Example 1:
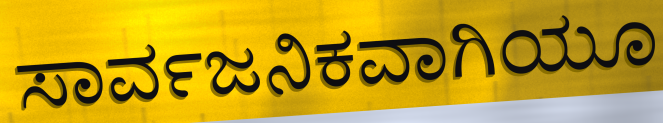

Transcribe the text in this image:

ಸಾರ್ವಜನಿಕವಾಗಿಯೂ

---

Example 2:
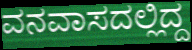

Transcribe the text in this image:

ವನವಾಸದಲ್ಲಿದ್ದ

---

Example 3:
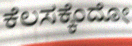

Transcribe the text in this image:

ಕೆಲಸಕ್ಕೆಂದೋ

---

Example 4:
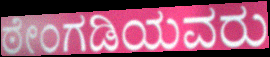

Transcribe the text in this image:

ಠೇಂಗಡಿಯವರು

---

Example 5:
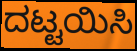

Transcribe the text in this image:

ದಟ್ಟಯಿಸಿ